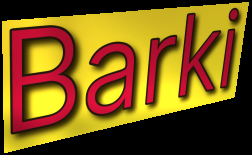
Barki